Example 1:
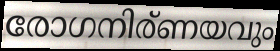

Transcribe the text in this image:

രോഗനിര്ണയവും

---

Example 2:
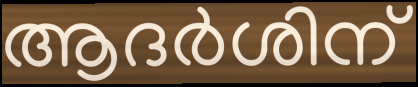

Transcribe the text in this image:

ആദർശിന്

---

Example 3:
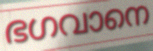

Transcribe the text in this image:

ഭഗവാനെ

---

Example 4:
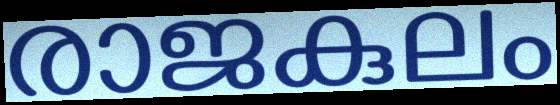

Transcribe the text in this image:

രാജകുലം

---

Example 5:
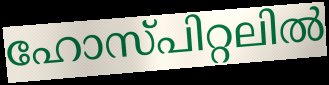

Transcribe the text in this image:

ഹോസ്പിറ്റലിൽ